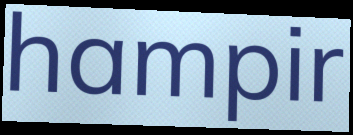
hampir